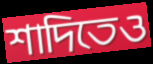
শাদিতেও